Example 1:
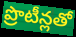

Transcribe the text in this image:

ప్రొటీన్లతో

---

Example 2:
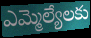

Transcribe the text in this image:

ఎమ్మెల్యేలకు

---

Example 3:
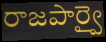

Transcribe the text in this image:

రాజపార్వై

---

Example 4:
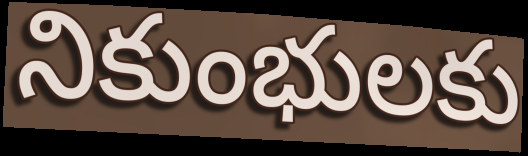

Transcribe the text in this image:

నికుంభులకు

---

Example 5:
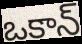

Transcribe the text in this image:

ఒకాన్